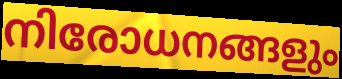
നിരോധനങ്ങളും